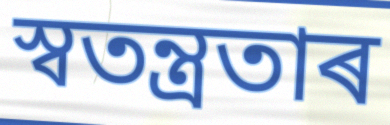
স্বতন্ত্ৰতাৰ